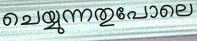
ചെയ്യുന്നതുപോലെ